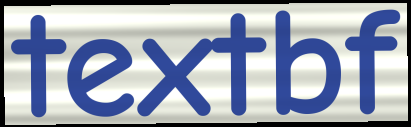
textbf